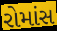
રોમાંસ